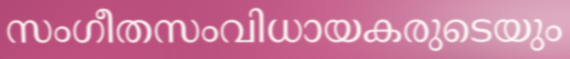
സംഗീതസംവിധായകരുടെയും